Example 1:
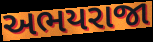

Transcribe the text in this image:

અભયરાજા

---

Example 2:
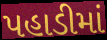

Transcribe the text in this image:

પહાડીમાં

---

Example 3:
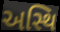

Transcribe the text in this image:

અસ્થિ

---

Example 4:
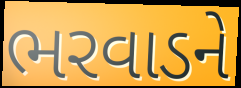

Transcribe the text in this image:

ભરવાડને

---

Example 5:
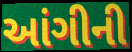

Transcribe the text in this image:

આંગીની